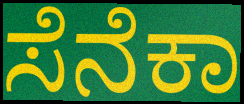
ಸೆನೆಕಾ